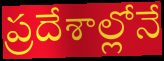
ప్రదేశాల్లోనే